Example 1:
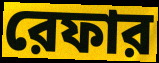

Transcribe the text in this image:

রেফার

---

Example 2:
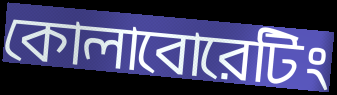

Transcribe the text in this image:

কোলাবোরেটিং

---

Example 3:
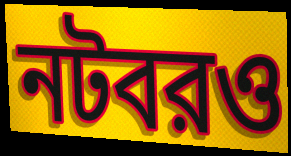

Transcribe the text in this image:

নটবরও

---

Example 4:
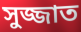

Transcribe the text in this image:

সুজ্জাত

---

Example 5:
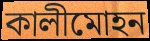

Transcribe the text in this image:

কালীমোহন